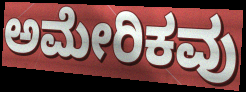
ಅಮೇರಿಕವು